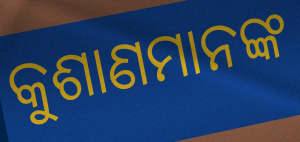
କୁଶାଣମାନଙ୍କ